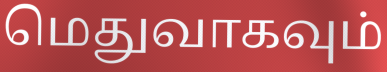
மெதுவாகவும்